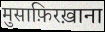
मुसाफ़िरख़ाना